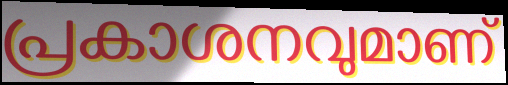
പ്രകാശനവുമാണ്